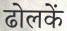
ढोलकें